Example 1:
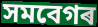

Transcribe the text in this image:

সমবেগৰ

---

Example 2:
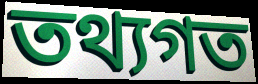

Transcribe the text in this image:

তথ্যগত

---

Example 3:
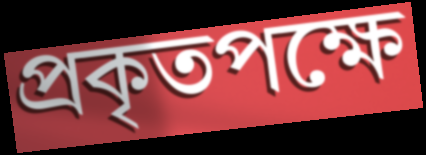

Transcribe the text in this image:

প্ৰকৃতপক্ষে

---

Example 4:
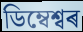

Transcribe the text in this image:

ডিম্বেশ্বৰ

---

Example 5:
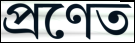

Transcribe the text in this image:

প্ৰণেত